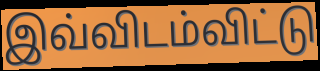
இவ்விடம்விட்டு